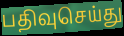
பதிவுசெய்து